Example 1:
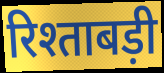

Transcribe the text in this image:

रिश्ताबड़ी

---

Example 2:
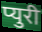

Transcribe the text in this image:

प्युरी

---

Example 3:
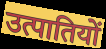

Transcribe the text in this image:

उत्पातियों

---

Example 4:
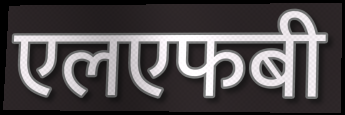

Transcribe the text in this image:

एलएफबी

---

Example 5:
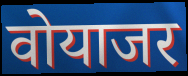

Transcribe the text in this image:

वोयाजर